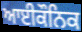
ਆਈਕੌਨਿਕ